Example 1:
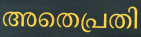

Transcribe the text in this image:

അതെപ്രതി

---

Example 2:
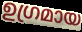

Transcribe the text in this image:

ഉഗ്രമായ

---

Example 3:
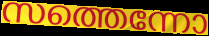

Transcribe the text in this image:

സത്തെന്നോ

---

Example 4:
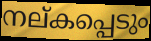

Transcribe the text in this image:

നല്കപ്പെടും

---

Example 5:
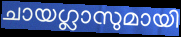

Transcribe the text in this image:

ചായഗ്ലാസുമായി